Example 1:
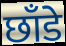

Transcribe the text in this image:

छाँडे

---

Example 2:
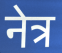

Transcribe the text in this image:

नेत्र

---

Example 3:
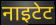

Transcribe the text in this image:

नाइटेट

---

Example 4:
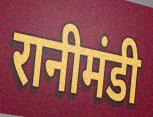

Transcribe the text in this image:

रानीमंडी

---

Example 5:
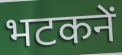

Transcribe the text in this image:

भटकनें